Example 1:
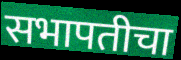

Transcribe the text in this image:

सभापतीचा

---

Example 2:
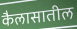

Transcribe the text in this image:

कैलासातील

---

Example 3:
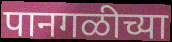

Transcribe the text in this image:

पानगळीच्या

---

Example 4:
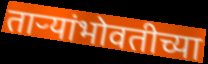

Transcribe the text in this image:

ताऱ्यांभोवतीच्या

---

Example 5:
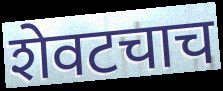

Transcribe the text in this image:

शेवटचाच